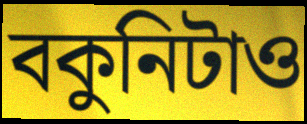
বকুনিটাও